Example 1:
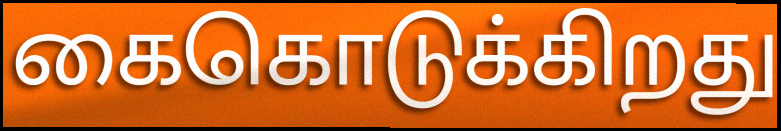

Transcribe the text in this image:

கைகொடுக்கிறது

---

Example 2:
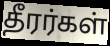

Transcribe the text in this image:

தீரர்கள்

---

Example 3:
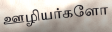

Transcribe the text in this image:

ஊழியர்களோ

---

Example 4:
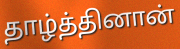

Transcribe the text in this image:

தாழ்த்தினான்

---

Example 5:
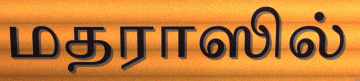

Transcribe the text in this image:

மதராஸில்